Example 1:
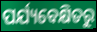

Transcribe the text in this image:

ପର୍ଯ୍ୟବେକ୍ଷିତରୁ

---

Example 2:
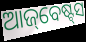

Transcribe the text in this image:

ଆଜ୍‌ବେଷ୍ଟ୍‌ସ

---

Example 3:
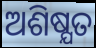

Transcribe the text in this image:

ଅଶିଷ୍ଯତ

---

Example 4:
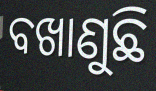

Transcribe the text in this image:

ବଖାଣୁଛି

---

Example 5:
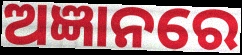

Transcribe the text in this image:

ଅଜ୍ଞାନରେ